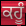
ਕਹੂੰ